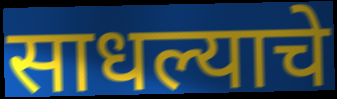
साधल्याचे